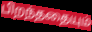
பிறந்ததையும்